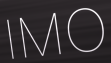
IMO